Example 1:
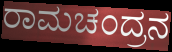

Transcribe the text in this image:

ರಾಮಚಂದ್ರನ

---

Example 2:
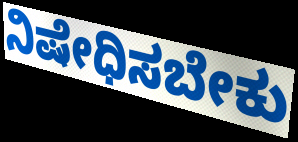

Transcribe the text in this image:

ನಿಷೇಧಿಸಬೇಕು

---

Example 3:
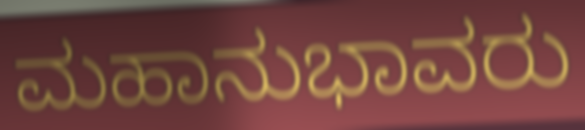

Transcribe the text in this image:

ಮಹಾನುಭಾವರು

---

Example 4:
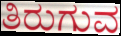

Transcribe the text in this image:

ತಿರುಗುವ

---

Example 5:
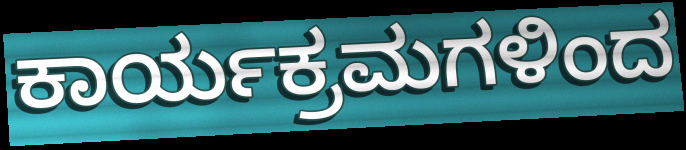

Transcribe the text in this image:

ಕಾರ್ಯಕ್ರಮಗಳಿಂದ